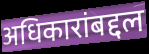
अधिकारांबद्दल